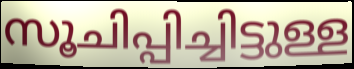
സൂചിപ്പിച്ചിട്ടുള്ള